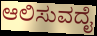
ಆಲಿಸುವದೈ